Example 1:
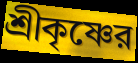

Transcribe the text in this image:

শ্রীকৃষ্ণের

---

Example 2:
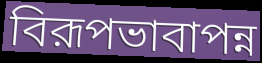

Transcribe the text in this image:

বিরূপভাবাপন্ন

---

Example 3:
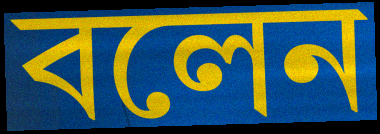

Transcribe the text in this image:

বলেন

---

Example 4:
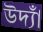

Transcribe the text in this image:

উদ্যাঁ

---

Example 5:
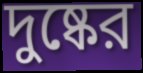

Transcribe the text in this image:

দুষ্কের